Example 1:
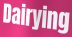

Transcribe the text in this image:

Dairying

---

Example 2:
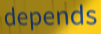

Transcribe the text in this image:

depends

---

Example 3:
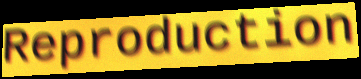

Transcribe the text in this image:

Reproduction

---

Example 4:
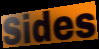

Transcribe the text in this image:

Sides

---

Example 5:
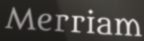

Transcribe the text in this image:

Merriam